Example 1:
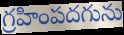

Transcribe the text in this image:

గ్రహింపదగును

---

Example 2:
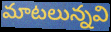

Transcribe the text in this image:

మాటలున్నవి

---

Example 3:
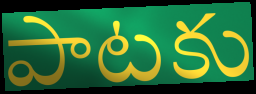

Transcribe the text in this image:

పాటకు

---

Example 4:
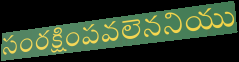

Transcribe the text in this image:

సంరక్షింపవలెననియు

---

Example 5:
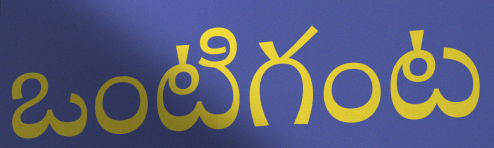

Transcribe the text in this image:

ఒంటిగంట